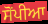
ਸੋਂਪੀਆ